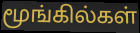
மூங்கில்கள்